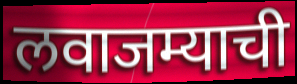
लवाजम्याची